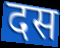
दस